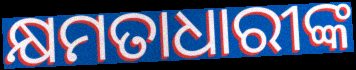
କ୍ଷମତାଧାରୀଙ୍କ